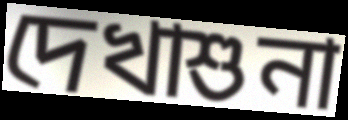
দেখাশুনা